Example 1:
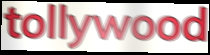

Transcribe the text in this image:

tollywood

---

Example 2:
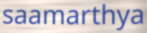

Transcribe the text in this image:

saamarthya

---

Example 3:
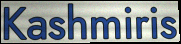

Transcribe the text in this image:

Kashmiris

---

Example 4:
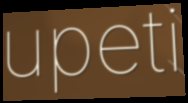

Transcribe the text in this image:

upeti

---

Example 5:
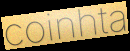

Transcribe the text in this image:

coinhta